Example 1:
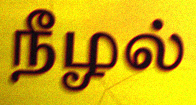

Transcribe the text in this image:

நீழல்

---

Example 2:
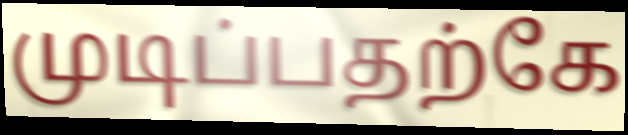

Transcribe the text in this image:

முடிப்பதற்கே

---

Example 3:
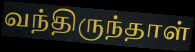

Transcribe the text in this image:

வந்திருந்தாள்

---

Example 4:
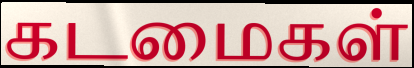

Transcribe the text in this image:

கடமைகள்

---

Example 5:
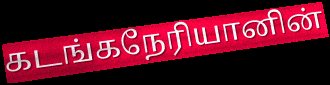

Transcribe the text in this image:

கடங்கநேரியானின்